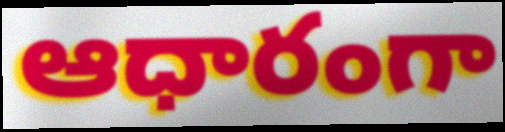
ఆధారంగా